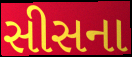
સીસના